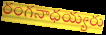
రంగనాధయ్యరు